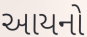
આયનો